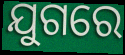
ଯୁଗରେ